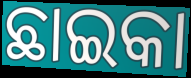
ଛାଇକା